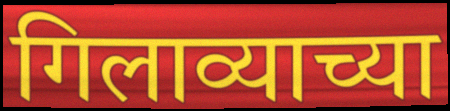
गिलाव्याच्या